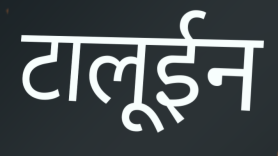
टालूईन